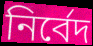
নির্বেদ